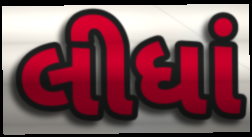
લીધાં